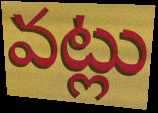
వట్లు